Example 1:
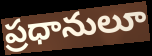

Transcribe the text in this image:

ప్రధానులూ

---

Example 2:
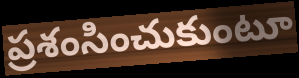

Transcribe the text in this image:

ప్రశంసించుకుంటూ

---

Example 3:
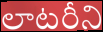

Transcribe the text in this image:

లాటరీని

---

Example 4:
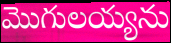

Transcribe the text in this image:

మొగులయ్యను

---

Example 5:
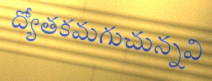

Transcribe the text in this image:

ద్యోతకమగుచున్నవి